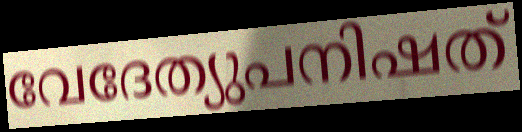
വേദേത്യുപനിഷത്